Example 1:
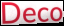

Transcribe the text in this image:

Deco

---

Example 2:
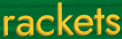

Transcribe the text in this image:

rackets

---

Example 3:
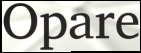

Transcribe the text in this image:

Opare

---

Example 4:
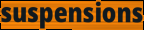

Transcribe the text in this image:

suspensions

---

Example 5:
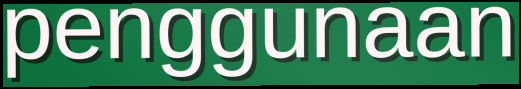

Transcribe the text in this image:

penggunaan